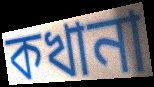
কখানা